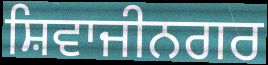
ਸ਼ਿਵਾਜੀਨਗਰ